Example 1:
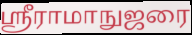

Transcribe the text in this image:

ஸ்ரீராமாநுஜரை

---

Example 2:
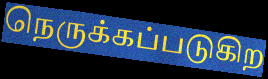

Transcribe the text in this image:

நெருக்கப்படுகிற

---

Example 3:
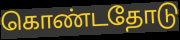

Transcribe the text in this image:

கொண்டதோடு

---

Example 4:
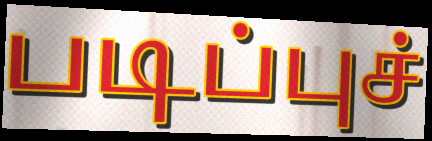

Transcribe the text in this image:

படிப்புச்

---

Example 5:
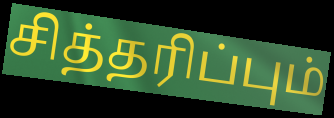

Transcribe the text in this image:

சித்தரிப்பும்